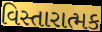
વિસ્તારાત્મક